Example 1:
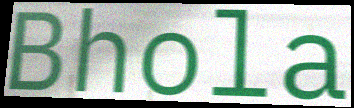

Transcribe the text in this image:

Bhola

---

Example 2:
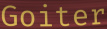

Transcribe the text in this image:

Goiter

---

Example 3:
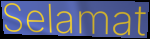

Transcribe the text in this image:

Selamat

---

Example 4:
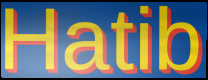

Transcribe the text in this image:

Hatib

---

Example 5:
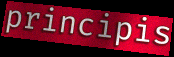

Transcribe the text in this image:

principis